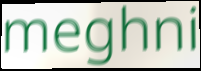
meghni